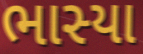
ભાસ્યા